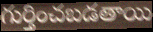
గుర్తించబడతాయి